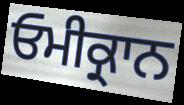
ਓਮੀਕ੍ਰਾਨ